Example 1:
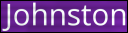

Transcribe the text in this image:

Johnston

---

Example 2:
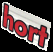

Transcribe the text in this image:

hort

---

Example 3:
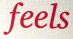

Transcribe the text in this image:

feels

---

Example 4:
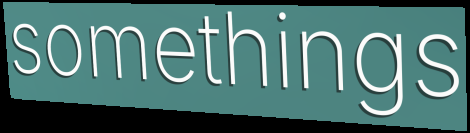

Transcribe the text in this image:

somethings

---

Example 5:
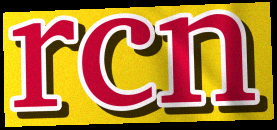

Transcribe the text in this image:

rcn